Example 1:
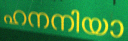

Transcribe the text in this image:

ഹനനിയാ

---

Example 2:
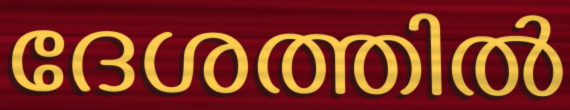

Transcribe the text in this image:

ദേശത്തിൽ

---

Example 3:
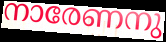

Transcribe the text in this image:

നാരേണനു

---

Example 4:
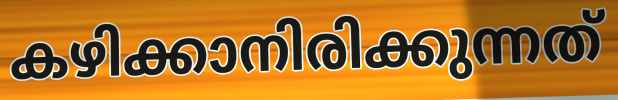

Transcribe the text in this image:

കഴിക്കാനിരിക്കുന്നത്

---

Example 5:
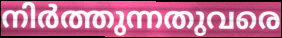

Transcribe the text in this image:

നിർത്തുന്നതുവരെ